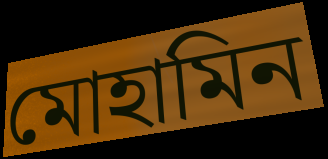
মোহামিন